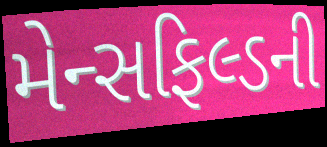
મેન્સફિલ્ડની